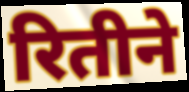
रितीने